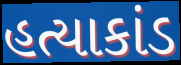
હત્યાકાંડ